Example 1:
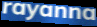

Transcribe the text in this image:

rayanna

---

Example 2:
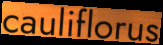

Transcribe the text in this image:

cauliflorus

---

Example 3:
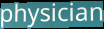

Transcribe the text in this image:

physician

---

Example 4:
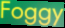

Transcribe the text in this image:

Foggy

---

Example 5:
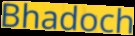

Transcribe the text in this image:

Bhadoch